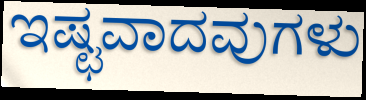
ಇಷ್ಟವಾದವುಗಳು